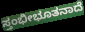
ಸ್ತಂಭೀಭೂತನಾದೆ